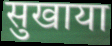
सुखाया